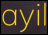
ayil